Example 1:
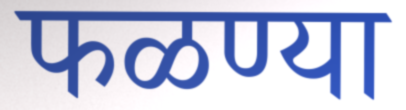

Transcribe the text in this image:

फळण्या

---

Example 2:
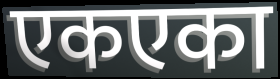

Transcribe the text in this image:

एकएका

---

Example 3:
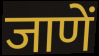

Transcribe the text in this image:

जाणें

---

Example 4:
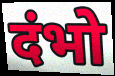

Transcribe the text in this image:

दंभो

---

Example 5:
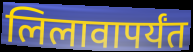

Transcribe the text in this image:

लिलावापर्यंत